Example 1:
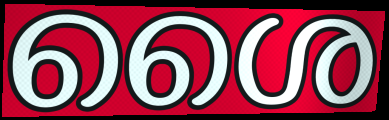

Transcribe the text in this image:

ശൈ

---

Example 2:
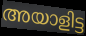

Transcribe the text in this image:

അയാളിട്ട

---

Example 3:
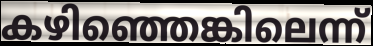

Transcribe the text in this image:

കഴിഞ്ഞെങ്കിലെന്ന്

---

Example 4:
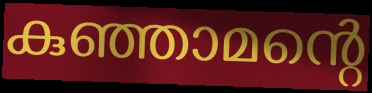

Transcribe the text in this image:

കുഞ്ഞാമന്റെ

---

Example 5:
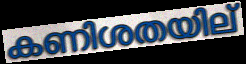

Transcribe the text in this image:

കണിശതയില്